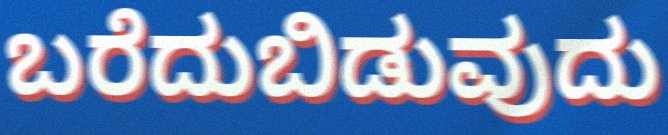
ಬರೆದುಬಿಡುವುದು